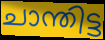
ചാന്തിട്ട